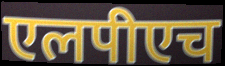
एलपीएच